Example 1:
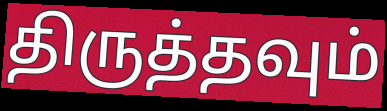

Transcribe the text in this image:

திருத்தவும்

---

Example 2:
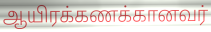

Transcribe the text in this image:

ஆயிரக்கணக்கானவர்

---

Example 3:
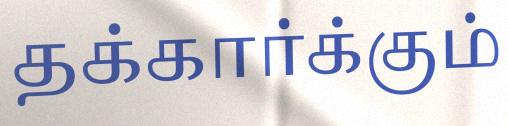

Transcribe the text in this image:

தக்கார்க்கும்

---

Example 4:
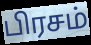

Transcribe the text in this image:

பிரசம்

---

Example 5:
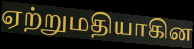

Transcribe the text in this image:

ஏற்றுமதியாகின